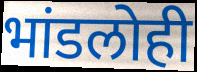
भांडलोही